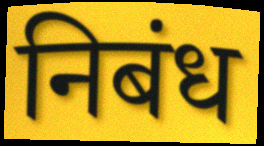
निबंध